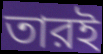
তারই